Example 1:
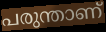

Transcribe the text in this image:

പരുന്താണ്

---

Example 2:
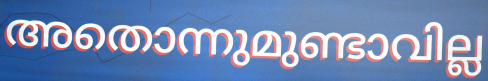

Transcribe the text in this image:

അതൊന്നുമുണ്ടാവില്ല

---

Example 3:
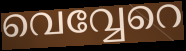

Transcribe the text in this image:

വെവ്വേറെ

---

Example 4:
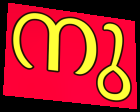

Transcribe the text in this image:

നു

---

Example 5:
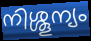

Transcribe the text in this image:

നിശ്ശൂന്യം